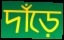
দাঁড়ে